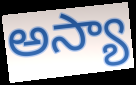
అస్యా